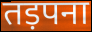
तड़पना